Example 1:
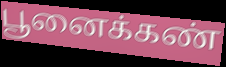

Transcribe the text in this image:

பூனைக்கண்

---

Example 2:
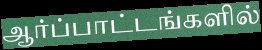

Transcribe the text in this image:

ஆர்ப்பாட்டங்களில்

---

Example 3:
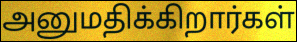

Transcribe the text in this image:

அனுமதிக்கிறார்கள்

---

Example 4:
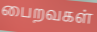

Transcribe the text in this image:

பைறவகள்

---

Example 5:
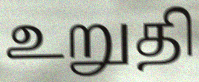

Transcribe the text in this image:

உறுதி